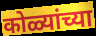
कोळ्यांच्या